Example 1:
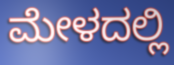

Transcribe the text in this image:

ಮೇಳದಲ್ಲಿ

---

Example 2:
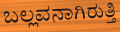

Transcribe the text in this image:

ಬಲ್ಲವನಾಗಿರುತ್ತಿ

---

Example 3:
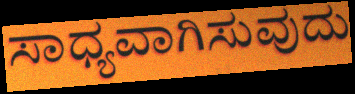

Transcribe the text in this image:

ಸಾಧ್ಯವಾಗಿಸುವುದು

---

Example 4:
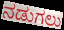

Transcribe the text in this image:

ನಡುಗಲು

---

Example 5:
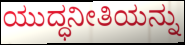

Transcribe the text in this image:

ಯುದ್ಧನೀತಿಯನ್ನು